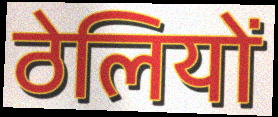
ठेलियों